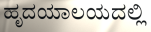
ಹೃದಯಾಲಯದಲ್ಲಿ